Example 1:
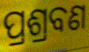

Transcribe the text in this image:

ପ୍ରଶ୍ରବଣ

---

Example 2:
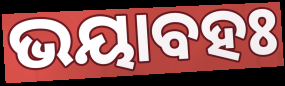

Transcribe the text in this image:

ଭୟାବହଃ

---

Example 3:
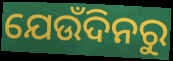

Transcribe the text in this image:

ଯେଉଁଦିନରୁ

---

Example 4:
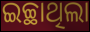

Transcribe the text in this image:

ଇଚ୍ଛାଥିଲା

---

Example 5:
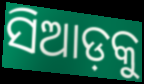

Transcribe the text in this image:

ସିଆଡ଼କୁ